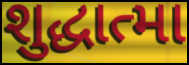
શુદ્ધાત્મા